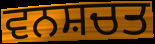
ਵਨਸ਼ਚਤ